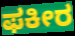
ಫಕೀರ